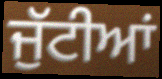
ਜੁੱਟੀਆਂ